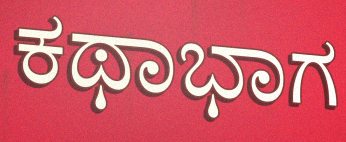
ಕಥಾಭಾಗ